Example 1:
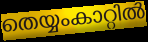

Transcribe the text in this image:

തെയ്യംകാറ്റിൽ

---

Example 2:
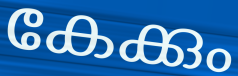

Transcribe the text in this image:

കേക്കും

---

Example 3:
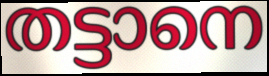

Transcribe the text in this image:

തട്ടാനെ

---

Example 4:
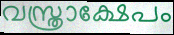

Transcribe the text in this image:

വസ്ത്രാക്ഷേപം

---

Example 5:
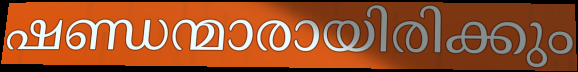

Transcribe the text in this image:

ഷണ്ഡന്മാരായിരിക്കും